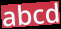
abcd